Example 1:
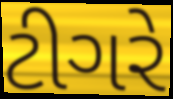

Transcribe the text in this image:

ટીગરે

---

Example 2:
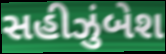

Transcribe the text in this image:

સહીઝુંબેશ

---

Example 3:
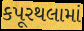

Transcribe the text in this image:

કપૂરથલામાં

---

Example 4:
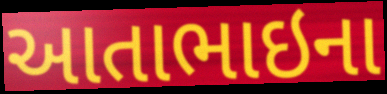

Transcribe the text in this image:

આતાભાઇના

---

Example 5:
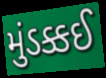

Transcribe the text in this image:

મુંડક્કઈ